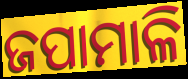
ଜପାମାଳି